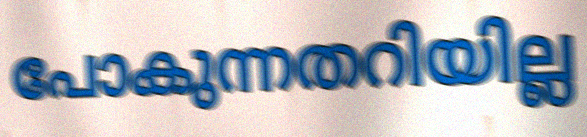
പോകുന്നതറിയില്ല